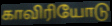
காவிரியோடு